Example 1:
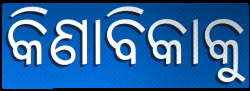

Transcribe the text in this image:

କିଣାବିକାକୁ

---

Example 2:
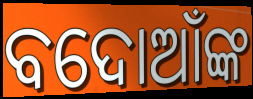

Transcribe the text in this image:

ବଦୋଆଁଙ୍କ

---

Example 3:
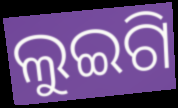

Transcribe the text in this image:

ଲୁଇଗି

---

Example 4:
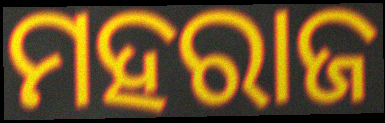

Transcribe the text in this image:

ମହରାଜ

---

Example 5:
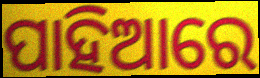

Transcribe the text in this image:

ପାହିଆରେ